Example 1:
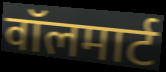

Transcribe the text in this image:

वॉलमार्ट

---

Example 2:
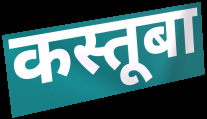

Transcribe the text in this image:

कस्तूबा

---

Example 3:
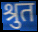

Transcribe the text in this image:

श्रुत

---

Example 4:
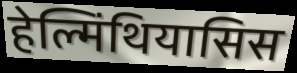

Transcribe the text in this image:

हेल्मिंथियासिस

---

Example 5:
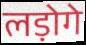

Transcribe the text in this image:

लड़ोगे